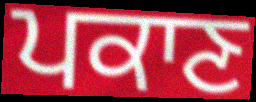
ਪਕਾਣ